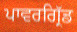
ਪਾਵਰਗ੍ਰਿੱਡ